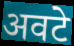
अवटे